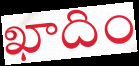
ఖాదిం